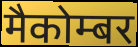
मैकोम्बर